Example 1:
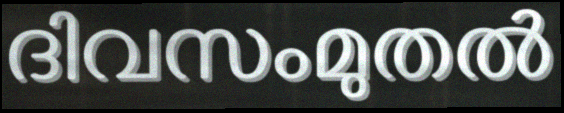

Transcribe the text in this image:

ദിവസംമുതൽ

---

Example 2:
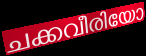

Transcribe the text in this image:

ചക്കവീരിയോ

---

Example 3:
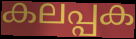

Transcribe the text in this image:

കലപ്പക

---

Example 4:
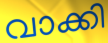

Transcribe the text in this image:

വാക്കി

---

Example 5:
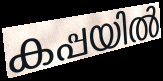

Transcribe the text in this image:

കപ്പയിൽ